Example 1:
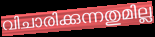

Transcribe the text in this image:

വിചാരിക്കുന്നതുമില്ല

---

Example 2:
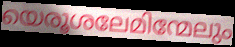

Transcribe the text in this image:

യെരൂശലേമിന്മേലും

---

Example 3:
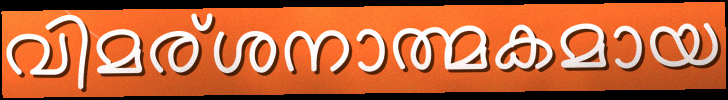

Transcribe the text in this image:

വിമര്ശനാത്മകമായ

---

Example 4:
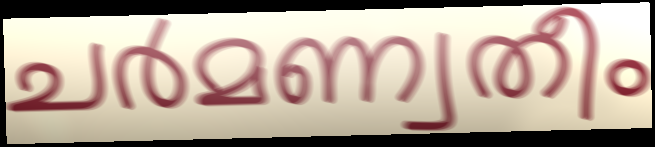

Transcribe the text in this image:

ചർമണ്വതീം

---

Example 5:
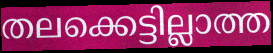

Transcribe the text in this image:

തലക്കെട്ടില്ലാത്ത